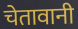
चेतावानी